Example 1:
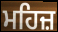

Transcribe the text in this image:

ਮਹਿਜ਼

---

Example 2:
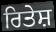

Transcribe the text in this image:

ਰਿਤੇਸ਼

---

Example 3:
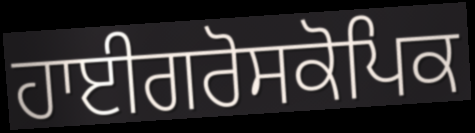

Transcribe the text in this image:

ਹਾਈਗਰੋਸਕੋਪਿਕ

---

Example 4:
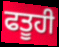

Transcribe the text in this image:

ਫਤੂਹੀ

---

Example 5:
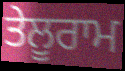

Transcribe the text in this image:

ਤੇਲੂਰਾਮ